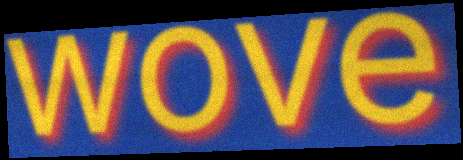
wove